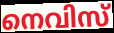
നെവിസ്